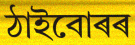
ঠাইবোৰৰ